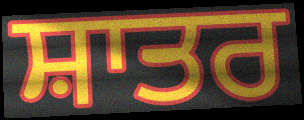
ਸ਼ਾਤਰ